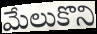
మేలుకొని